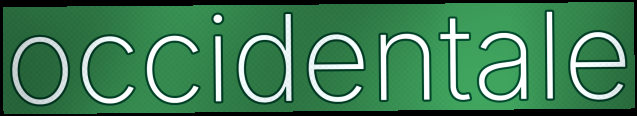
occidentale